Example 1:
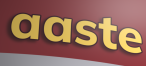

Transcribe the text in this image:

aaste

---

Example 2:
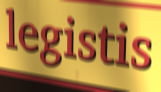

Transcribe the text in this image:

legistis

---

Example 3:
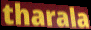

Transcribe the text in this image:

tharala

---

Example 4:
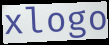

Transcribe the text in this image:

xlogo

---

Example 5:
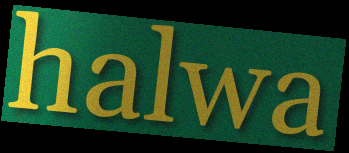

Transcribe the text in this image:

halwa